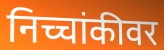
निच्चांकीवर